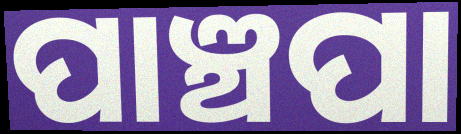
ପାଞ୍ଚପା